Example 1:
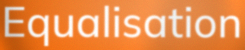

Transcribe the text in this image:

Equalisation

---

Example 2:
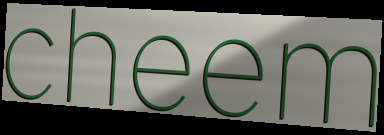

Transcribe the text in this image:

cheem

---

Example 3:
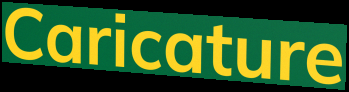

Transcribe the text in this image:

Caricature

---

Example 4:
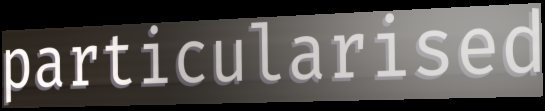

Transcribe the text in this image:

particularised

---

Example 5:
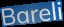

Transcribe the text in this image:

Bareli